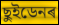
ছুইডেনৰ